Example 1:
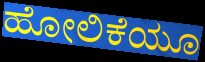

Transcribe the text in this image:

ಹೋಲಿಕೆಯೂ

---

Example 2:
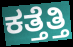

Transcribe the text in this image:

ಕತ್ತೆತ್ತಿ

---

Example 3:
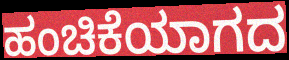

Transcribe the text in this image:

ಹಂಚಿಕೆಯಾಗದ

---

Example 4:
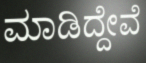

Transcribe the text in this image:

ಮಾಡಿದ್ದೇವೆ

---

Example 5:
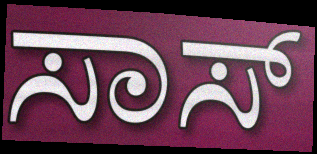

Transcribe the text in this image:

ಸಾಸ್